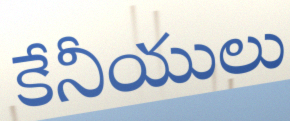
కేనీయులు